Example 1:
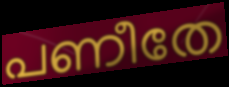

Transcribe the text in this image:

പണീതേ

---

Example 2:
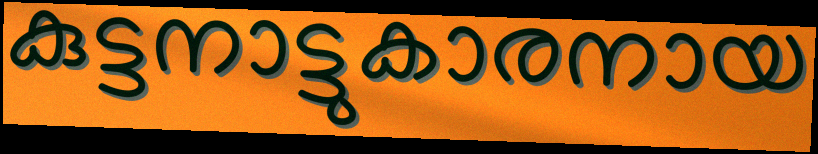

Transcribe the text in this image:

കുട്ടനാട്ടുകാരനായ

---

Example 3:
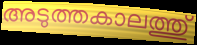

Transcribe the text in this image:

അടുത്തകാലത്തു്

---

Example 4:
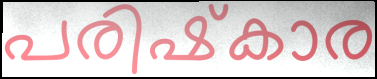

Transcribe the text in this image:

പരിഷ്‌കാര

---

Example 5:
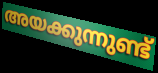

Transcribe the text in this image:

അയക്കുന്നുണ്ട്